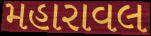
મહારાવલ